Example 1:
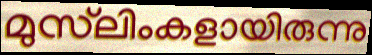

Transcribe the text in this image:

മുസ്‌ലിംകളായിരുന്നു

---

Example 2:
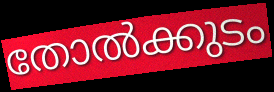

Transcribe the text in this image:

തോൽക്കുടം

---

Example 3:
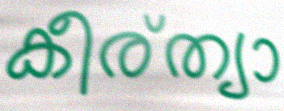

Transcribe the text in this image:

കീര്ത്യാ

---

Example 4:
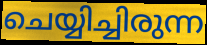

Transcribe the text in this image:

ചെയ്യിച്ചിരുന്ന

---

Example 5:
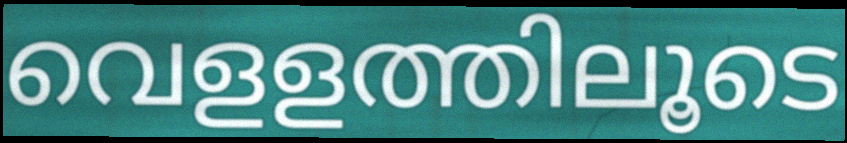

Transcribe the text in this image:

വെളളത്തിലൂടെ